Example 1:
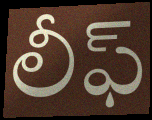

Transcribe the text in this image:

లీఫ్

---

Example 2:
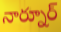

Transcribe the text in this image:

నార్నూర్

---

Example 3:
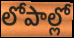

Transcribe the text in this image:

లోపాల్లో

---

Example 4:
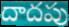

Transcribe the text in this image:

దాదపు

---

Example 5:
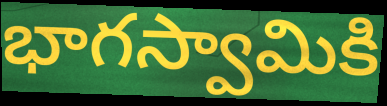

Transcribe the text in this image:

భాగస్వామికి